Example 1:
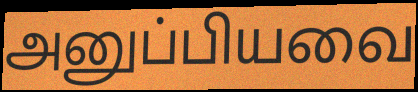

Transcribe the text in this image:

அனுப்பியவை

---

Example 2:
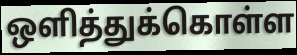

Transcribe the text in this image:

ஒளித்துக்கொள்ள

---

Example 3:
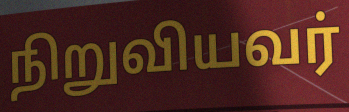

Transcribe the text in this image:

நிறுவியவர்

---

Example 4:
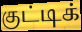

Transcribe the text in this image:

குட்டிக்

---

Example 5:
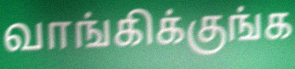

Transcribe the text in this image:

வாங்கிக்குங்க